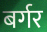
बर्गर